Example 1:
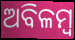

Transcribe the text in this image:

ଅବିଳମ୍ବ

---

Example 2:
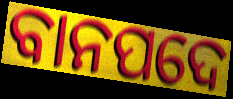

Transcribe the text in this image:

ବାନପଦେ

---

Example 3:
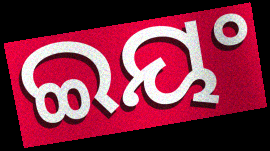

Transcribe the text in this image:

ଇୟଂ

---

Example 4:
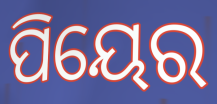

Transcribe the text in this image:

ପିୟେର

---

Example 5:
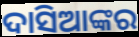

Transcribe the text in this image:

ଦାସିଆଙ୍କର